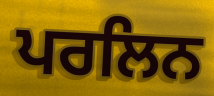
ਪਰਲਿਨ